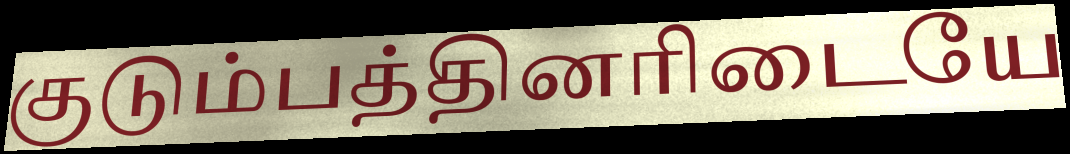
குடும்பத்தினரிடையே